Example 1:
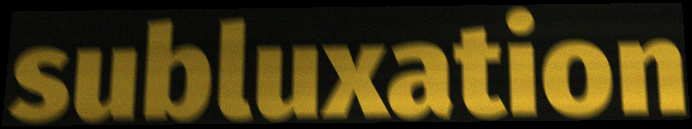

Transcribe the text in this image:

subluxation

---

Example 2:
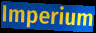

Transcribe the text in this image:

Imperium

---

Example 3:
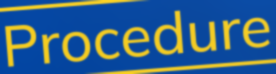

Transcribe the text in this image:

Procedure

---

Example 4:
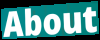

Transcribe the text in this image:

About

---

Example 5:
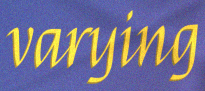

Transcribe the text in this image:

varying